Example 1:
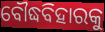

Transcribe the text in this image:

ବୌଦ୍ଧବିହାରକୁ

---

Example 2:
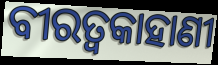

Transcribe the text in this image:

ବୀରତ୍ୱକାହାଣୀ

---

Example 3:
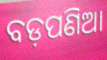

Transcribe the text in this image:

ବଡ଼ପଣିଆ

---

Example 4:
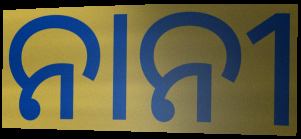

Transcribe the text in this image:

ନାନୀ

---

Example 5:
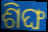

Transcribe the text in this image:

ଶିଙ୍ଘ